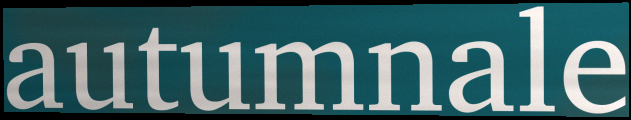
autumnale